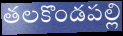
తలకొండపల్లి